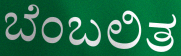
ಬೆಂಬಲಿತ